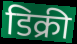
डिक्री